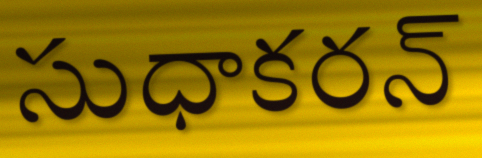
సుధాకరన్